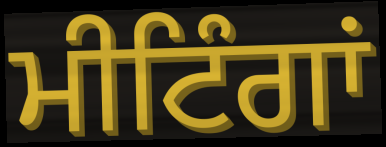
ਮੀਟਿੰਗਾਂ